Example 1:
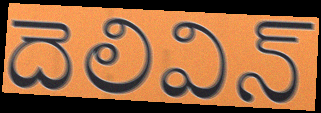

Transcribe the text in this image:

దెలివిన్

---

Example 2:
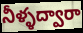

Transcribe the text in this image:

నీళ్ళద్వారా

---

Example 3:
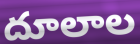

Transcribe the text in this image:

దూలాల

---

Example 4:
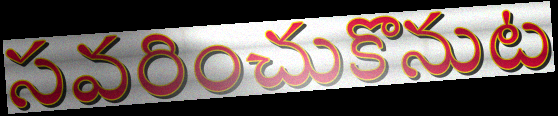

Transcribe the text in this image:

సవరించుకొనుట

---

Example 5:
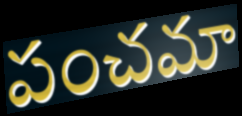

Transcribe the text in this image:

పంచమా